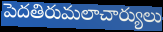
పెదతిరుమలాచార్యులు